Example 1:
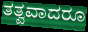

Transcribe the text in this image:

ತತ್ವವಾದರೂ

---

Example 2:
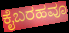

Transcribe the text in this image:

ಕೈಬರಹವೂ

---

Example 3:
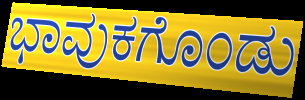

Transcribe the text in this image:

ಭಾವುಕಗೊಂಡು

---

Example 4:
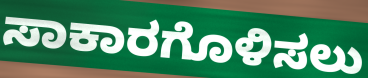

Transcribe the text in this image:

ಸಾಕಾರಗೊಳಿಸಲು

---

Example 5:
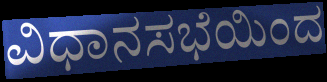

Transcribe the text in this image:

ವಿಧಾನಸಭೆಯಿಂದ